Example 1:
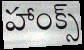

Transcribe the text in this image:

హాంక్స్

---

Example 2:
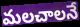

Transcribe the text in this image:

మలచాలనే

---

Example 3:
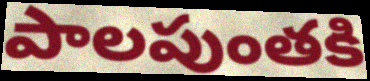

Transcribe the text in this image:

పాలపుంతకి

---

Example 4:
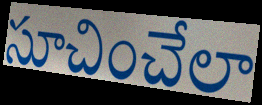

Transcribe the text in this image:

సూచించేలా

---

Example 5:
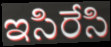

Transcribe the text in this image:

ఇసిరేసి